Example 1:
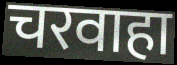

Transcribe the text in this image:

चरवाहा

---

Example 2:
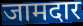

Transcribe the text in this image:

जामदार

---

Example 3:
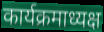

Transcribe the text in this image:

कार्यक्रमाध्यक्ष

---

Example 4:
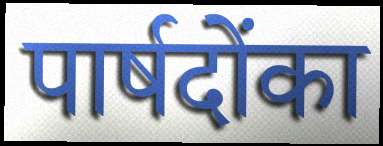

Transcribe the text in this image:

पार्षदोंका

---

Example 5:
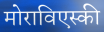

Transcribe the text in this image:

मोराविएस्की